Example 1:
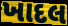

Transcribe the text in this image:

ખાદલ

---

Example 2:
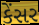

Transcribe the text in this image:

કેંસર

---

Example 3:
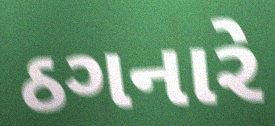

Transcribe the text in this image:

ઠગનારે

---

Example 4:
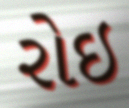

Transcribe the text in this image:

રોઇ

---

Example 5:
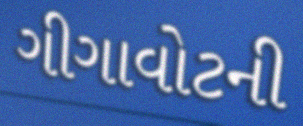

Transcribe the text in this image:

ગીગાવોટની